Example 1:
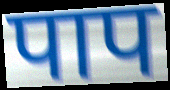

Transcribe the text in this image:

पाप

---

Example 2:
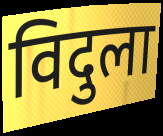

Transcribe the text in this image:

विदुला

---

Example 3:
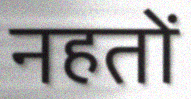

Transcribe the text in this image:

नहतों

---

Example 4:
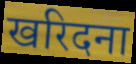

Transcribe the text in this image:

खरिदना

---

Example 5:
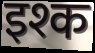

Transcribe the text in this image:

इश्क